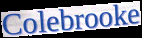
Colebrooke